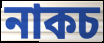
নাকচ